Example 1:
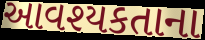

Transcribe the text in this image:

આવશ્યકતાના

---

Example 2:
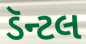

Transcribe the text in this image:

ડૅન્ટલ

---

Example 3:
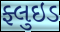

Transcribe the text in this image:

ફ્લુઇડ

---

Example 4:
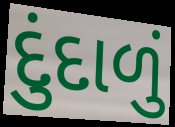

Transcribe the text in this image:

દુંદાળું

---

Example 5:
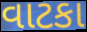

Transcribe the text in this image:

વાટકા